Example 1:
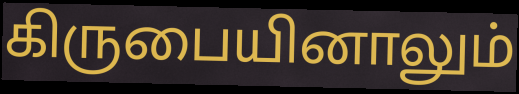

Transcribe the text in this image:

கிருபையினாலும்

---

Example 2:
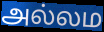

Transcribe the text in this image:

அல்லம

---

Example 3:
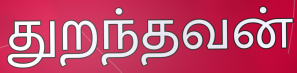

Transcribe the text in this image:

துறந்தவன்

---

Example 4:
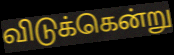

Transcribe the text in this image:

விடுக்கென்று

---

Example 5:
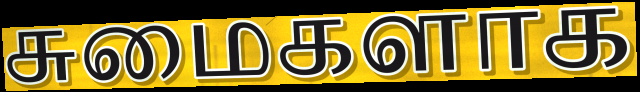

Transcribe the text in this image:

சுமைகளாக